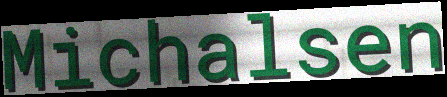
Michalsen